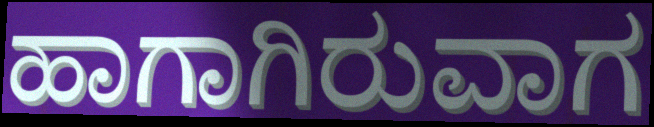
ಹಾಗಾಗಿರುವಾಗ